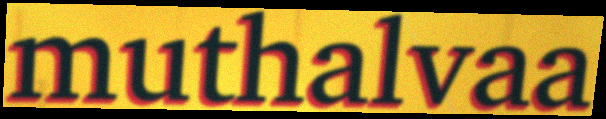
muthalvaa